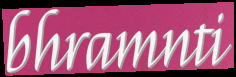
bhramnti